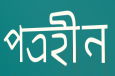
পত্রহীন